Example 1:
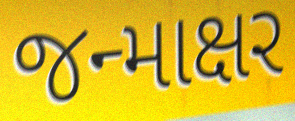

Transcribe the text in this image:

જન્માક્ષર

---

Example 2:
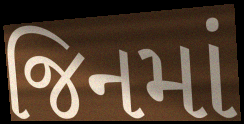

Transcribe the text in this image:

જિનમાં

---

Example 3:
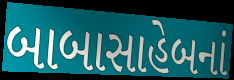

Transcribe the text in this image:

બાબાસાહેબનાં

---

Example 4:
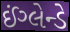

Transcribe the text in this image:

ઈંગ્લેન્ડે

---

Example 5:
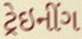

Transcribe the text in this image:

ટ્રેઇનીંગ